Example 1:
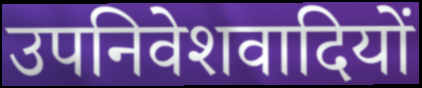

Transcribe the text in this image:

उपनिवेशवादियों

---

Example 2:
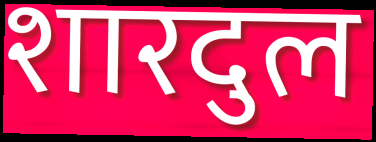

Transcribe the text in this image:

शारदुल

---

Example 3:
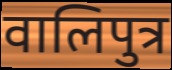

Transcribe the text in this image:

वालिपुत्र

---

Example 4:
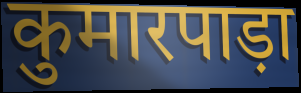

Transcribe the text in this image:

कुमारपाड़ा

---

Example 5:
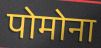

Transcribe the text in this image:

पोमोना